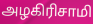
அழகிரிசாமி